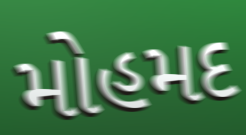
મોહમદ